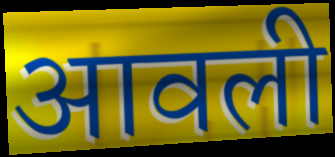
आवली